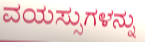
ವಯಸ್ಸುಗಳನ್ನು